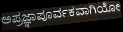
ಅಪ್ರಜ್ಞಾಪೂರ್ವಕವಾಗಿಯೋ